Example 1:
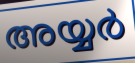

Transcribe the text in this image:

അയ്യർ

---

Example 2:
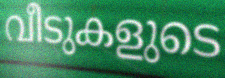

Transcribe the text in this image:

വീടുകളുടെ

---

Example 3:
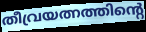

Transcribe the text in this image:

തീവ്രയത്നത്തിന്റെ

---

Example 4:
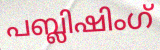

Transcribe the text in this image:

പബ്ലിഷിംഗ്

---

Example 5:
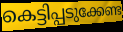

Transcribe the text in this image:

കെട്ടിപ്പടുക്കേണ്ട